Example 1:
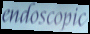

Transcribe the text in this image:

endoscopic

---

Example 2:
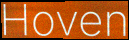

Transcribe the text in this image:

Hoven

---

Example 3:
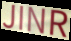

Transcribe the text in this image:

JINR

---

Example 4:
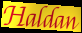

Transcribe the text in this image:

Haldan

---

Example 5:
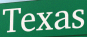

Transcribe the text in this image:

Texas